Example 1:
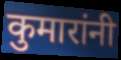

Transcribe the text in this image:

कुमारांनी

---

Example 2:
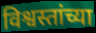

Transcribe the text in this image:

विश्वस्तांच्या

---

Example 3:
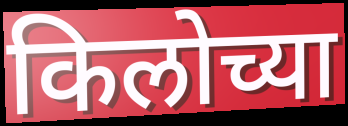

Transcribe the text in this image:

किलोच्या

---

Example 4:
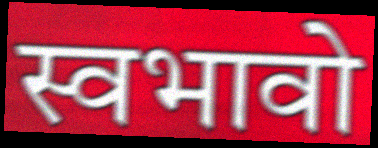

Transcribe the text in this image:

स्वभावो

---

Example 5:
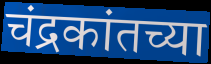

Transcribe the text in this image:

चंद्रकांतच्या